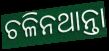
ଚଳିନଥାନ୍ତା